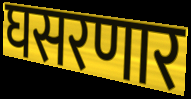
घसरणार